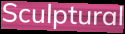
Sculptural